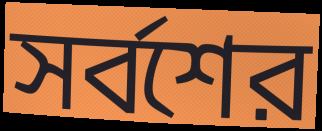
সর্বশের